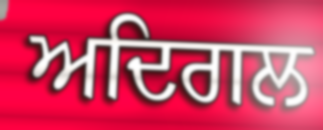
ਅਦਿਗਲ